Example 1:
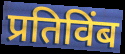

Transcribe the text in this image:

प्रतिविंब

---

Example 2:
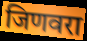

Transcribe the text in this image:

जिणवरा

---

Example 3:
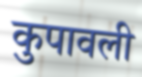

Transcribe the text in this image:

कुपावली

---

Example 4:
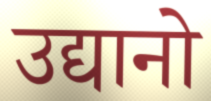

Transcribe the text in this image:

उद्यानो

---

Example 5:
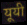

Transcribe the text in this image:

यूयी